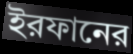
ইরফানের